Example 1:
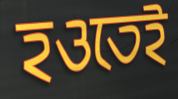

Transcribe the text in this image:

হওতেই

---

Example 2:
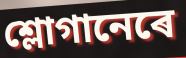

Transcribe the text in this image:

শ্লোগানেৰে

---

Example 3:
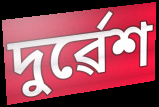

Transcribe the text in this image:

দুৰ্ৱেশ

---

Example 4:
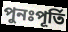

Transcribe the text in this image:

পুনঃপূৰ্তি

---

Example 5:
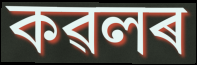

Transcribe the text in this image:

কৱলৰ